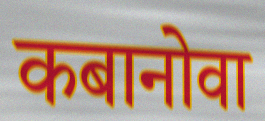
कबानोवा